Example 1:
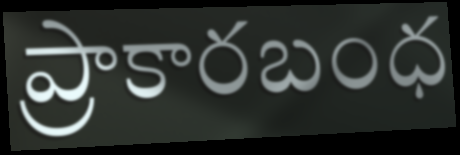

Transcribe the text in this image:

ప్రాకారబంధ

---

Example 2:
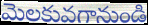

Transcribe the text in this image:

మెలకువగానుండి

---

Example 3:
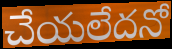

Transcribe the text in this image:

చేయలేదనో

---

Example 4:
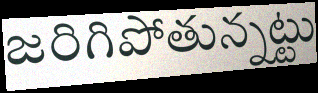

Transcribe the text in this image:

జరిగిపోతున్నట్టు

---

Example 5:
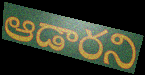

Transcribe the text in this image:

ఆడారని